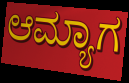
ಆಮ್ಯಾಗ